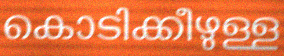
കൊടിക്കീഴുള്ള